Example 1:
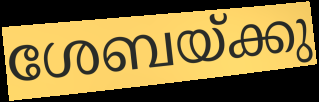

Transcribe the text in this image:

ശേബയ്ക്കു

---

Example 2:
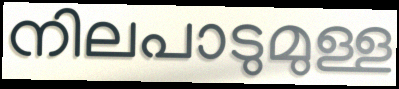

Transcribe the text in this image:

നിലപാടുമുള്ള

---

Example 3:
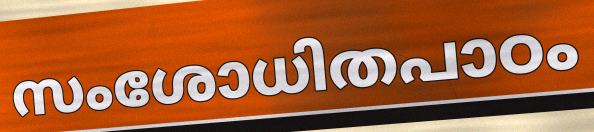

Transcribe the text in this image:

സംശോധിതപാഠം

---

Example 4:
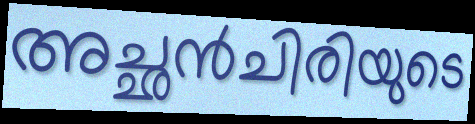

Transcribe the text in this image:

അച്ഛൻചിരിയുടെ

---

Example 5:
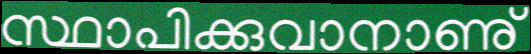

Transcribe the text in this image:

സ്ഥാപിക്കുവാനാണു്